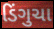
ડિંગુચા